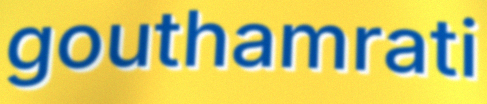
gouthamrati